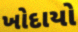
ખોદાયો